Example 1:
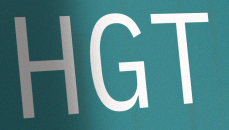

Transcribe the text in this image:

HGT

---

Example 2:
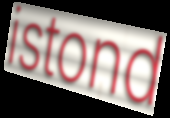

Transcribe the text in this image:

istond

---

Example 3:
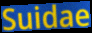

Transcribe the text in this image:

Suidae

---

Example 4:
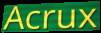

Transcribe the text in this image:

Acrux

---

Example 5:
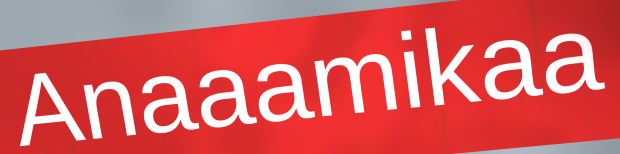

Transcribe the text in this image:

Anaaamikaa